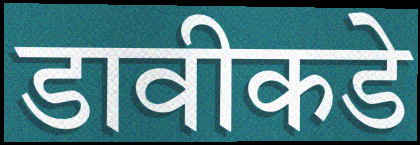
डावीकडे